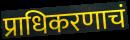
प्राधिकरणाचं